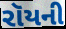
રૉયની